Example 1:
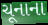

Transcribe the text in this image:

ચૂનાના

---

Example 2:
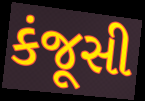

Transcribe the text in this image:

કંજૂસી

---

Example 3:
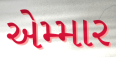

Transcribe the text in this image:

એમ્માર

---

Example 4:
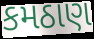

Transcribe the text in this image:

કમઠાણ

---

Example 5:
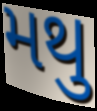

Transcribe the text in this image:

મથુ